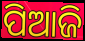
ପିଆଜି